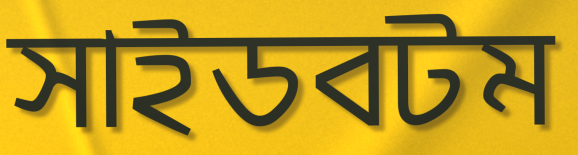
সাইডবটম